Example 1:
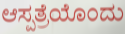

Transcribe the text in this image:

ಆಸ್ಪತ್ರೆಯೊಂದು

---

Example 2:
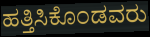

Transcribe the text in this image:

ಹತ್ತಿಸಿಕೊಂಡವರು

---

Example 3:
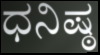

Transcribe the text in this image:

ಧನಿಷ್ಠ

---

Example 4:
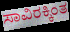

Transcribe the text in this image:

ಸಾವಿರಕ್ಕಿಂತ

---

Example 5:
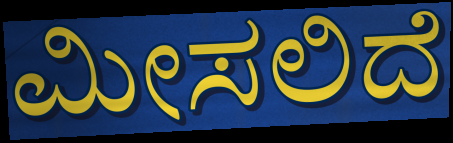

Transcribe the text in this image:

ಮೀಸಲಿದೆ